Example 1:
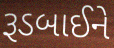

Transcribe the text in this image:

રૂડબાઈને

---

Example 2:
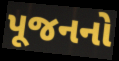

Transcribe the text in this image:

પૂજનનો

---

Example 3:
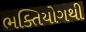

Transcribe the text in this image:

ભક્તિયોગથી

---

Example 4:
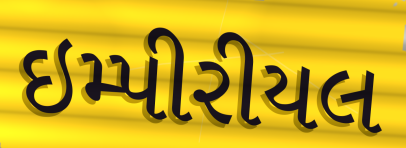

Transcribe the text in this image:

ઇમ્પીરીયલ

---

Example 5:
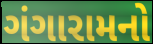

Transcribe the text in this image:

ગંગારામનો